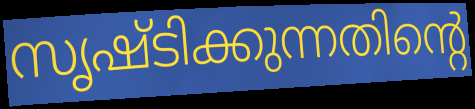
സൃഷ്ടിക്കുന്നതിന്റെ